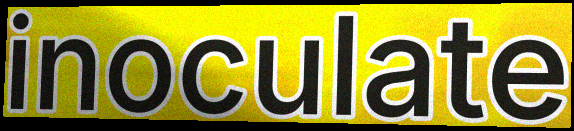
inoculate